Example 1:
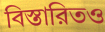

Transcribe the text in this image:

বিস্তারিতও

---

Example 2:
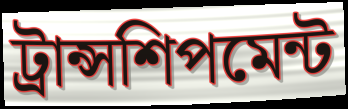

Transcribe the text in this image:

ট্রান্সশিপমেন্ট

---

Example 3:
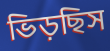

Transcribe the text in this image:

ভিড়ছিস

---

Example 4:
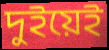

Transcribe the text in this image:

দুইয়েই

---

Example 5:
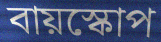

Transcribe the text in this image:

বায়স্কোপ